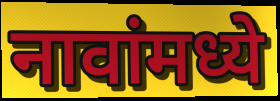
नावांमध्ये